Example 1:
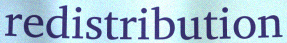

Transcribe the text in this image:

redistribution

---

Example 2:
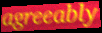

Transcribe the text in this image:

agreeably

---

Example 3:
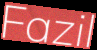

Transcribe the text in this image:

Fazil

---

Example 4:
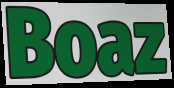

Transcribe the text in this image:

Boaz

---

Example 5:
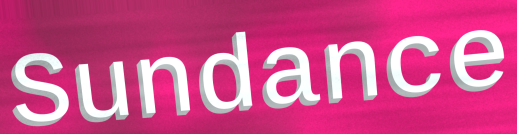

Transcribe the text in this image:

Sundance